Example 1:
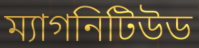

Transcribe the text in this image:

ম্যাগনিটিউড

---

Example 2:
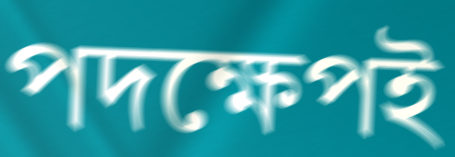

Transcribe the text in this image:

পদক্ষেপই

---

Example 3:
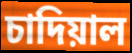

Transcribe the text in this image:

চাদিয়াল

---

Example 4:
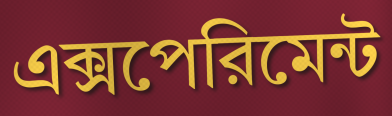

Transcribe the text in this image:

এক্সপেরিমেন্ট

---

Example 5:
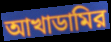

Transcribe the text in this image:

আখাডামির